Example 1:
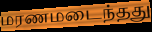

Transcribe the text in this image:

மரணமடைந்தது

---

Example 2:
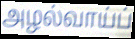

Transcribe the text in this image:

அழல்வாய்ப்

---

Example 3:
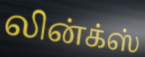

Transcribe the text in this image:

லின்க்ஸ்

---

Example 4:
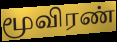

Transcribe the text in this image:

மூவிரண்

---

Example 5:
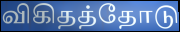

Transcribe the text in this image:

விகிதத்தோடு